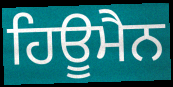
ਹਿਊਮੈਨ